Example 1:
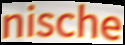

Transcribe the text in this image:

nische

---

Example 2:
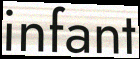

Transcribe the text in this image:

infant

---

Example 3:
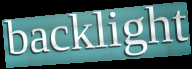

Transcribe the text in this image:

backlight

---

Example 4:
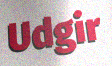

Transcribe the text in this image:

Udgir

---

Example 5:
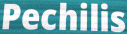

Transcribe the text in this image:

Pechilis